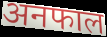
अनफाल